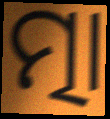
ତ୍ମା